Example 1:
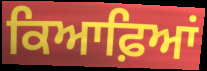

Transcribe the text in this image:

ਕਿਆਫ਼ਿਆਂ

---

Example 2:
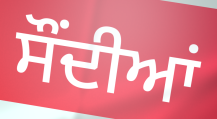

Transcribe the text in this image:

ਸੌਂਦੀਆਂ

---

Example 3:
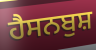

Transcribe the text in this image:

ਹੈਸਨਬੁਸ਼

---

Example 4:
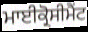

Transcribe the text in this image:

ਮਾਈਕ੍ਰੋਸੀਮੈਂਟ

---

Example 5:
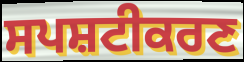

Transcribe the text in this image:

ਸਪਸ਼ਟੀਕਰਣ